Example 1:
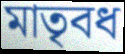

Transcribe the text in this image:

মাতৃবধ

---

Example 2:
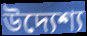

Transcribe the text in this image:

উদ্যেশ্য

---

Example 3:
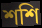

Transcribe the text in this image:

শশি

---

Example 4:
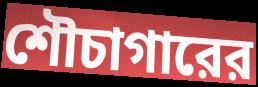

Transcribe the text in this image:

শৌচাগারের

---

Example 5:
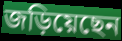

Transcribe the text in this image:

জড়িয়েছেন